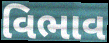
વિભાવ